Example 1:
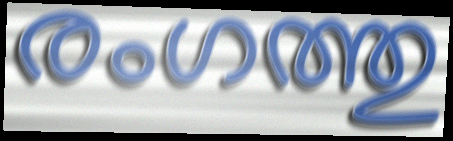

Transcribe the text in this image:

രംഗത്തു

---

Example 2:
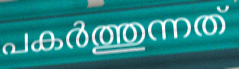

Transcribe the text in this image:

പകർത്തുന്നത്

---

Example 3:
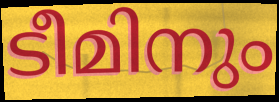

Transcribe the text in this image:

ടീമിനും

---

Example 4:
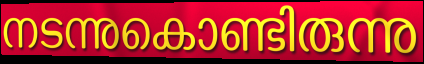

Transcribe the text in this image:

നടന്നുകൊണ്ടിരുന്നു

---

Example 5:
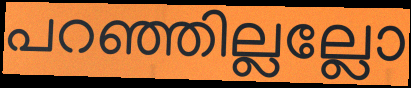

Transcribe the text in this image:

പറഞ്ഞില്ലല്ലോ